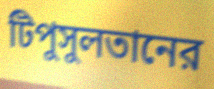
টিপুসুলতানের